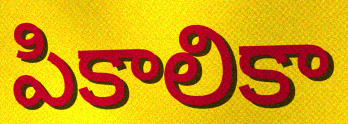
పికాలికా